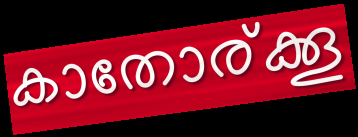
കാതോര്ക്കൂ